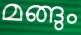
മങ്ങും